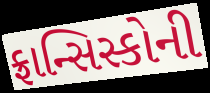
ફ્રાન્સિસ્કોની